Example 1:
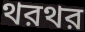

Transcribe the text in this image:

থরথর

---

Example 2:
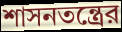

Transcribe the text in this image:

শাসনতন্ত্রের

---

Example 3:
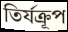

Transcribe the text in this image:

তির্যক্রূপ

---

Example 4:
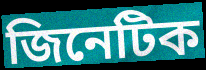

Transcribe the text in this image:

জিনেটিক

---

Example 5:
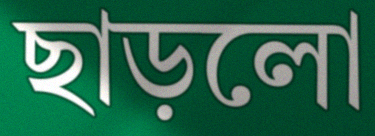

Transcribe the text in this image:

ছাড়লো